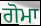
ਗੋਮਾ